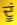
ਦੂਂ